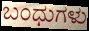
ಬಂಧುಗಳು